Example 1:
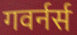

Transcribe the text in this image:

गवर्नर्स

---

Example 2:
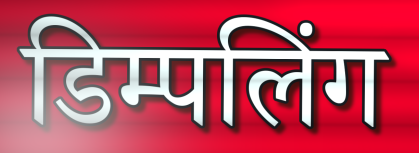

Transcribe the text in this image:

डिम्पलिंग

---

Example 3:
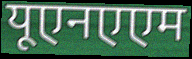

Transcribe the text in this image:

यूएनएएम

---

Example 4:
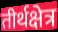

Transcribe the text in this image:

तीर्थक्षेत्र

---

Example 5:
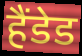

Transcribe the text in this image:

हैंडेड